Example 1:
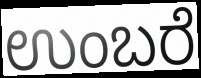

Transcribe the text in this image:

ಉಂಬರೆ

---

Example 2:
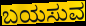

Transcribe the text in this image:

ಬಯಸುವ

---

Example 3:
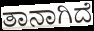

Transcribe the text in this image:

ತಾನಾಗಿದೆ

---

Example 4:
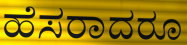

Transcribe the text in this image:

ಹೆಸರಾದರೂ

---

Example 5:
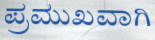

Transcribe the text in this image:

ಪ್ರಮುಖವಾಗಿ